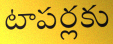
టాపర్లకు